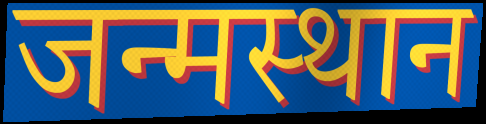
जन्मस्थान